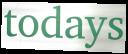
todays